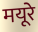
मयूरे